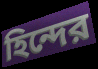
হিন্দের